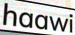
haawi